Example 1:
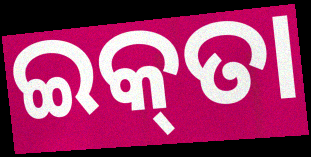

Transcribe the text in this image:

ଇକ୍‌ତା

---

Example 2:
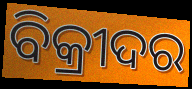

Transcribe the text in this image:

ବିକ୍ରୀଦର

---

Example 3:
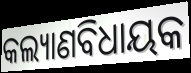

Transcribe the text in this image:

କଲ୍ୟାଣବିଧାୟକ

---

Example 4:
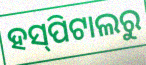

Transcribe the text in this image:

ହସ୍‌ପିଟାଲରୁ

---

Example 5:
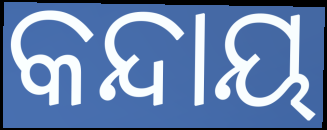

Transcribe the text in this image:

କନ୍ଦାୟ